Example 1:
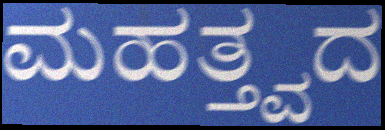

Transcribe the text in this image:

ಮಹತ್ತ್ವದ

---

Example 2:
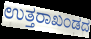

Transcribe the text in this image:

ಉತ್ತರಾಖಂಡದ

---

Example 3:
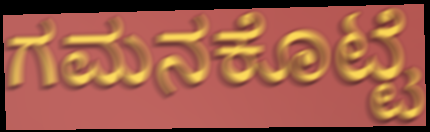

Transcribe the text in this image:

ಗಮನಕೊಟ್ಟೆ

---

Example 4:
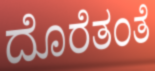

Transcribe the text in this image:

ದೊರೆತಂತೆ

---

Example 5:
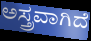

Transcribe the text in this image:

ಅಸ್ತ್ರವಾಗಿದೆ